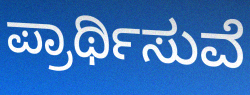
ಪ್ರಾರ್ಥಿಸುವೆ